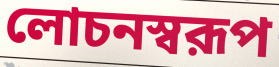
লোচনস্বরূপ